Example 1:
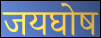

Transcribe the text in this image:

जयघोष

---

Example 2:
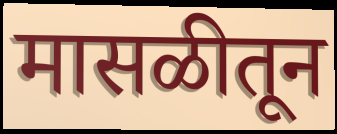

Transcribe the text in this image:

मासळीतून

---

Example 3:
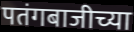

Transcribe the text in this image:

पतंगबाजीच्या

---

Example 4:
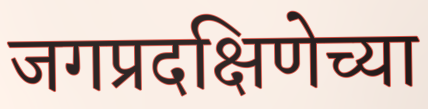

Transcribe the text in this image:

जगप्रदक्षिणेच्या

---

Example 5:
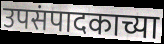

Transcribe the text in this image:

उपसंपादकाच्या